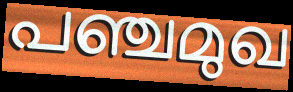
പഞ്ചമുഖ